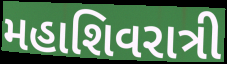
મહાશિવરાત્રી